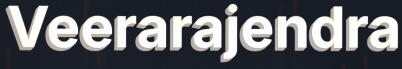
Veerarajendra